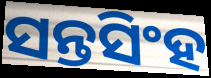
ସନ୍ତସିଂହ